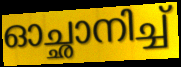
ഓച്ഛാനിച്ച്